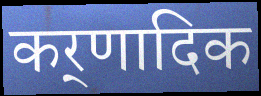
कर्णादिक